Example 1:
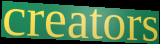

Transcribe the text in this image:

creators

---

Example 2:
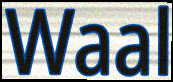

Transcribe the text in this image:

Waal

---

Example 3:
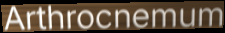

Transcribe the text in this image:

Arthrocnemum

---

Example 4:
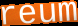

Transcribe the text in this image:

reum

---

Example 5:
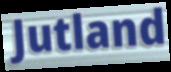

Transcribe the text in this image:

Jutland